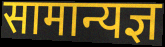
सामान्यज्ञ